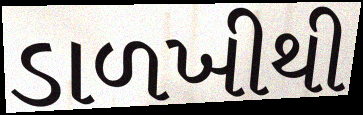
ડાળખીથી